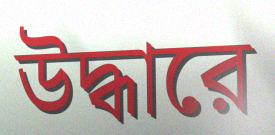
উদ্ধারে